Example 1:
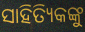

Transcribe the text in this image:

ସାହିତ୍ୟିକଙ୍କୁ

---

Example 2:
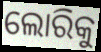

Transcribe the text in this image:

ଲୋରିକୁ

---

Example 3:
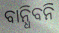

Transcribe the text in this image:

ବାନ୍ଧିବନି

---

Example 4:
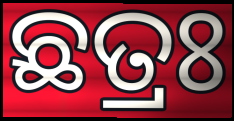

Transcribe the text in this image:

ଛତ୍ରଃ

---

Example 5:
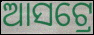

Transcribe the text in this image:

ଆସଟ୍ରେ